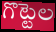
గొట్టెల